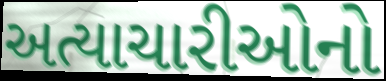
અત્યાચારીઓનો